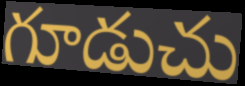
గూడుచు